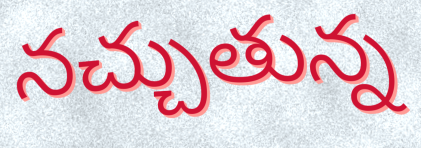
నచ్చుతున్న